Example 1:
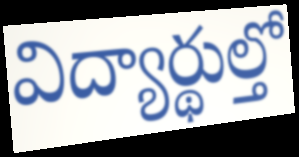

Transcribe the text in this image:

విద్యార్థుల్తో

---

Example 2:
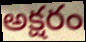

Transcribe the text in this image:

అక్షరం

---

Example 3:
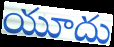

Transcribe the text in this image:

యూదు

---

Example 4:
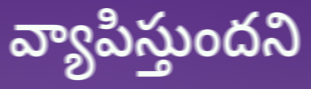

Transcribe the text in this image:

వ్యాపిస్తుందని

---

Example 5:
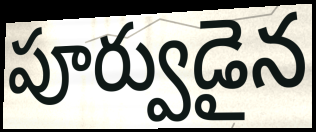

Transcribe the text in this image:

పూర్వుడైన